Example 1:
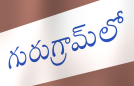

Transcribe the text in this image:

గురుగ్రామ్‌లో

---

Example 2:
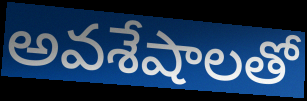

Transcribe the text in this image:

అవశేషాలతో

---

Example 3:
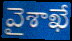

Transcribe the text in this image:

వైశాఖే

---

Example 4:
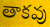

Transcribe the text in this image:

తాకవు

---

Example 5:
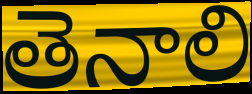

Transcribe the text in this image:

తెనాలి